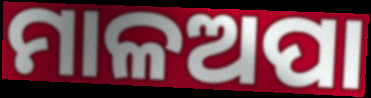
ମାଳଅପା